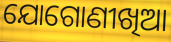
ଯୋଗୋଣୀଖିଆ